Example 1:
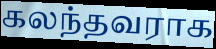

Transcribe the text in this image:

கலந்தவராக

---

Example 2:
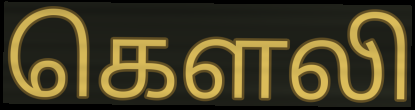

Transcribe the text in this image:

கௌலி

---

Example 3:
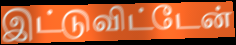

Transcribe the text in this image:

இட்டுவிட்டேன்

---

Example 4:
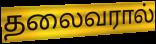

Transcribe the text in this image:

தலைவரால்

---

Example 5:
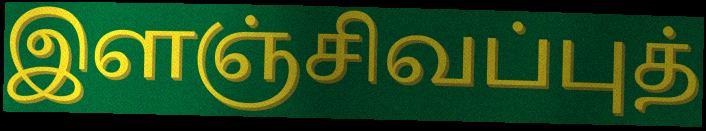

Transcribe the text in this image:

இளஞ்சிவப்புத்